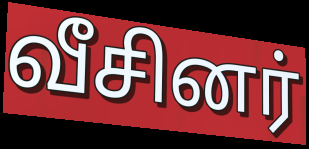
வீசினர்